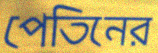
পেতিনের